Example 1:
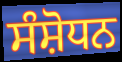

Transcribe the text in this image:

ਸੰਸ਼ੋਧਨ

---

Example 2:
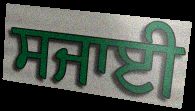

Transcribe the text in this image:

ਸਜਾਈ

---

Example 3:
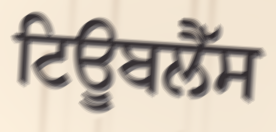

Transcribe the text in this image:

ਟਿਊਬਲੈੱਸ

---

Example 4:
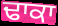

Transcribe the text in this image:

ਢਾਕਾ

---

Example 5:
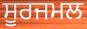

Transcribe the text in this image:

ਸੂਰਜਮਲ